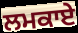
ਲਮਕਾਏ